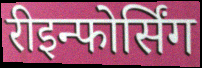
रीइन्फोर्सिंग